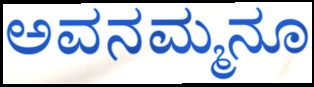
ಅವನಮ್ಮನೂ